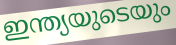
ഇന്ത്യയുടെയും